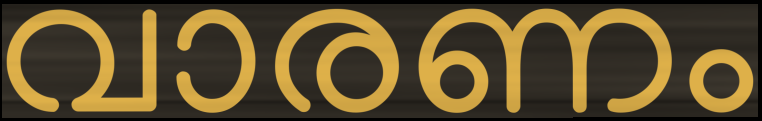
വാരണം